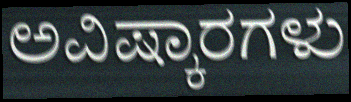
ಅವಿಷ್ಕಾರಗಳು